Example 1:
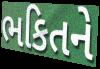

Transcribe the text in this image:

ભકિતને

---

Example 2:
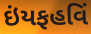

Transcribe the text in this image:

ઇંયફહવિં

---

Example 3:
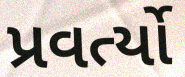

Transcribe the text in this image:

પ્રવર્ત્યો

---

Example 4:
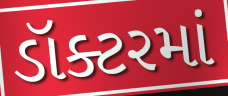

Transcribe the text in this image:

ડૉક્ટરમાં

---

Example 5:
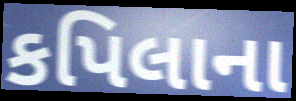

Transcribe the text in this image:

કપિલાના